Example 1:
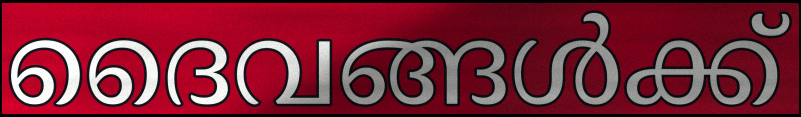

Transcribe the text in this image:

ദൈവങ്ങൾക്ക്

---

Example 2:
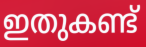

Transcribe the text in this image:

ഇതുകണ്ട്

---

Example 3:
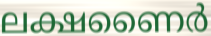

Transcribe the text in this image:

ലക്ഷണൈർ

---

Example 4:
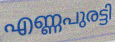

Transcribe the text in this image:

എണ്ണപുരട്ടി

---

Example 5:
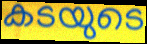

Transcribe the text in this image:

കടയുടെ